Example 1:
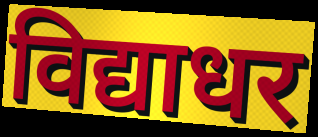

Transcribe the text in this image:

विद्याधर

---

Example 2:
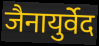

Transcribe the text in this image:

जैनायुर्वेद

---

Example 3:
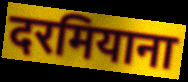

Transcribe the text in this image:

दरमियाना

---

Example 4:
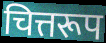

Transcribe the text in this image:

चित्तरूप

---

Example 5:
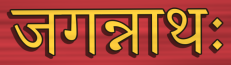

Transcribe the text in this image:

जगन्नाथः